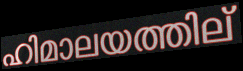
ഹിമാലയത്തില്